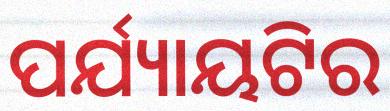
ପର୍ଯ୍ୟାୟଟିର